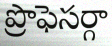
ప్రొఫెసర్గా